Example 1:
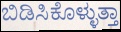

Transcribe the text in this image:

ಬಿಡಿಸಿಕೊಳ್ಳುತ್ತಾ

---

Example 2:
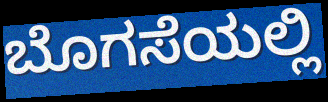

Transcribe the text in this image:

ಬೊಗಸೆಯಲ್ಲಿ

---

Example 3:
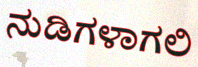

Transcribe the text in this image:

ನುಡಿಗಳಾಗಲಿ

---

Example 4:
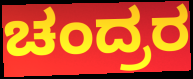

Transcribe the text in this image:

ಚಂದ್ರರ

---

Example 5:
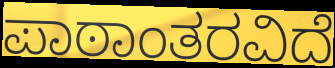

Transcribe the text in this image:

ಪಾಠಾಂತರವಿದೆ